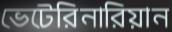
ভেটেরিনারিয়ান